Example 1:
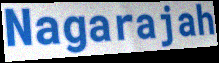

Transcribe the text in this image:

Nagarajah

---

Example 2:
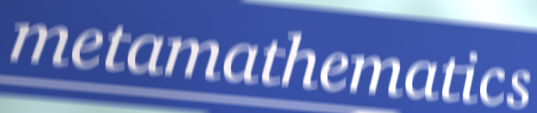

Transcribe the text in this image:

metamathematics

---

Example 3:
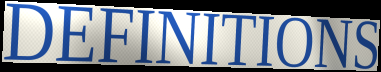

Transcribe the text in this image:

DEFINITIONS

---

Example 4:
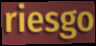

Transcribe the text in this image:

riesgo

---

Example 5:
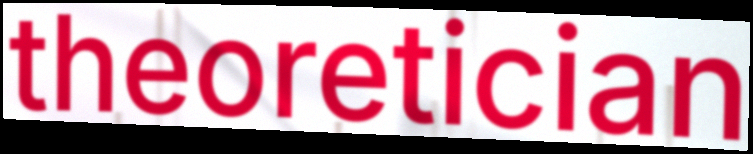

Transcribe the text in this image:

theoretician